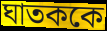
ঘাতককে